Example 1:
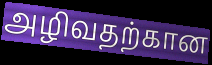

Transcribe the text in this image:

அழிவதற்கான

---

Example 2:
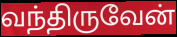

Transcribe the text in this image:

வந்திருவேன்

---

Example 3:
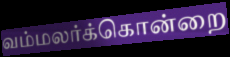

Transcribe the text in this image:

வம்மலர்க்கொன்றை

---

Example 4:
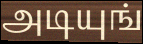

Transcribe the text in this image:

அடியுங்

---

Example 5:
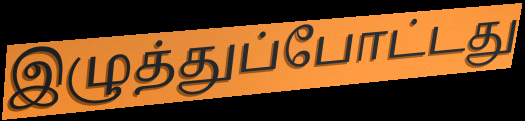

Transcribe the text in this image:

இழுத்துப்போட்டது